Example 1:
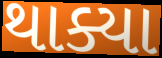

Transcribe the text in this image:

થાક્યા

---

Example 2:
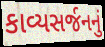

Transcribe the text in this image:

કાવ્યસર્જનનું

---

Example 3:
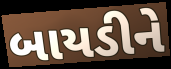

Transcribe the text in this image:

બાયડીને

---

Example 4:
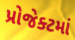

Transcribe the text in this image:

પ્રોજેક્ટમાં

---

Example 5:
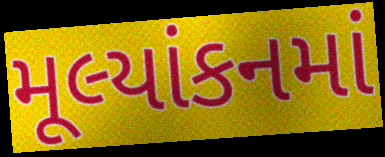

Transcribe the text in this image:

મૂલ્યાંકનમાં